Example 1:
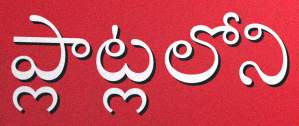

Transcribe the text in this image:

ప్లాట్లలోని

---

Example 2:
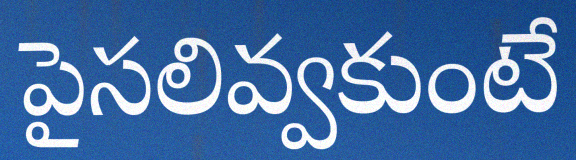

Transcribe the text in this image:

పైసలివ్వకుంటే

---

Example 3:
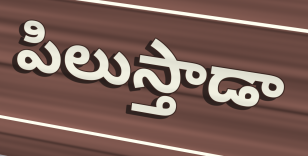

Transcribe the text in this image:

పిలుస్తాడా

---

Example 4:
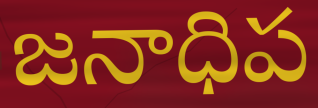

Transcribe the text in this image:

జనాధిప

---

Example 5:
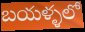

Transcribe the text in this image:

బయళ్ళలో